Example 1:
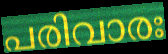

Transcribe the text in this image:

പരിവാരഃ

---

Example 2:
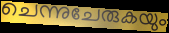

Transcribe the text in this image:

ചെന്നുചേരുകയും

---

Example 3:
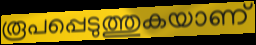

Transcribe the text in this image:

രൂപപ്പെടുത്തുകയാണ്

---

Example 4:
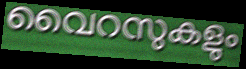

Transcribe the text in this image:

വൈറസുകളും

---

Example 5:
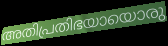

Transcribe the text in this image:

അതിപ്രതിഭയായൊരു